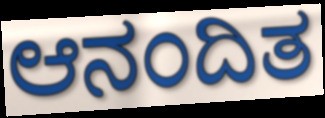
ಆನಂದಿತ